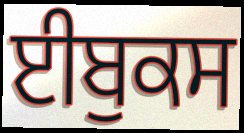
ਈਬੁਕਸ